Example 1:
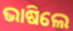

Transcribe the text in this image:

ଭାଷିଲେ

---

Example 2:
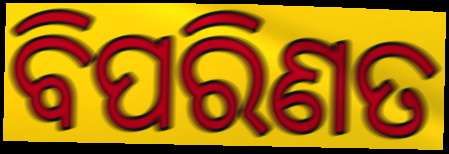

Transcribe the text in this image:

ବିପରିଣତ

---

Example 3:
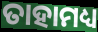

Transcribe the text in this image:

ତାହାମଧ୍ୟ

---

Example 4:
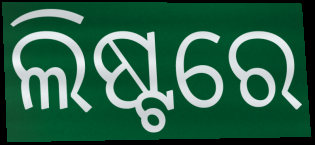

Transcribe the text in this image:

ଲିଷ୍ଟରେ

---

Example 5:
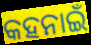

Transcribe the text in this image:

କହନାଇଁ